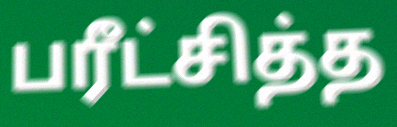
பரீட்சித்த